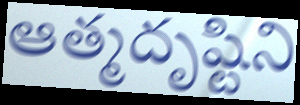
ఆత్మదృష్టిని